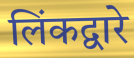
लिंकद्वारे